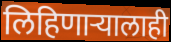
लिहिणाऱ्यालाही